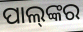
ପାଲ୍‍ଙ୍କର